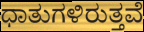
ಧಾತುಗಳಿರುತ್ತವೆ